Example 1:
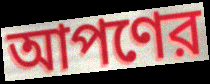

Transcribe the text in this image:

আপণের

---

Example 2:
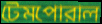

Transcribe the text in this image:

টেমপোরাল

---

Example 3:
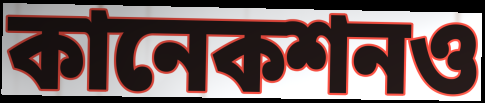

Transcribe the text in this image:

কানেকশনও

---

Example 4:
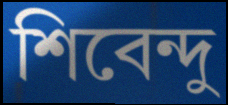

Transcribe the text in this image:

শিবেন্দু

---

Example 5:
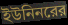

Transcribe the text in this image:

ইউনিনরের